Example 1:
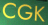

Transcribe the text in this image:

CGK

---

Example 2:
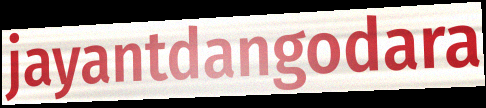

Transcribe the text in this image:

jayantdangodara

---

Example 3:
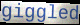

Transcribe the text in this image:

giggled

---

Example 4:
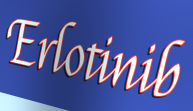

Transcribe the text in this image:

Erlotinib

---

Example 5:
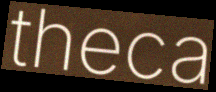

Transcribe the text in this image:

theca